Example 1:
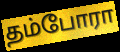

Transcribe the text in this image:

தம்போரா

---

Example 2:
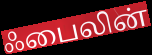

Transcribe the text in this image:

ஃபைலின்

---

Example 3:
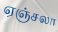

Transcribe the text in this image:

ஏஞ்சலா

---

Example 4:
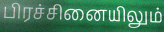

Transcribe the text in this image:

பிரச்சினையிலும்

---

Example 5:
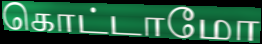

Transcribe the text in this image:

கொட்டாமோ